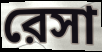
রেসা